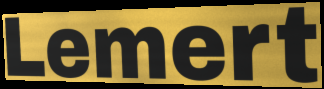
Lemert